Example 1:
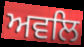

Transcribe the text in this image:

ਅਵਲਿ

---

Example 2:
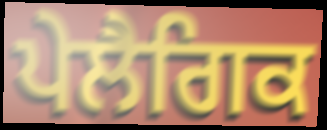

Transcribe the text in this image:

ਪੇਲੈਗਿਕ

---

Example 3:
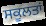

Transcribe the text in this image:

ਸਕੂਲਤਾਂ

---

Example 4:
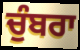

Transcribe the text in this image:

ਚੁੰਬਰਾ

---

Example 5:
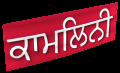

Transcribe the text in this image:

ਕਾਮਲਿਨੀ